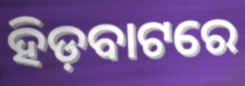
ହିଡ଼ବାଟରେ